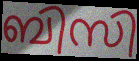
ബിസി